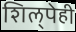
शिल्पेही